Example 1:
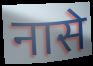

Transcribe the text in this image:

नासे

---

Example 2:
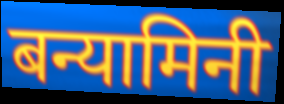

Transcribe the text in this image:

बन्यामिनी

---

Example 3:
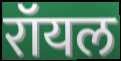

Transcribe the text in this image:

रॉयल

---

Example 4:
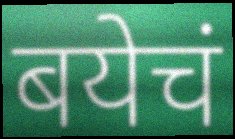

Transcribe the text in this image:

बयेचं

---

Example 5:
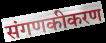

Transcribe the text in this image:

संगणकीकरण